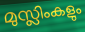
മുസ്ലിംകളും